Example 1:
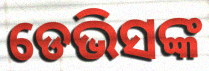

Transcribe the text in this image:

ଡେଭିସଙ୍କ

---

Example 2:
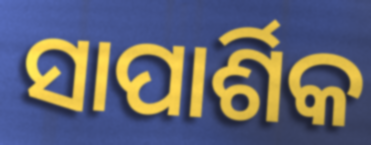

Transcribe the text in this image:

ସାପାର୍ଶିକ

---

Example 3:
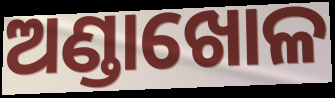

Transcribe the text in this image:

ଅଣ୍ଡାଖୋଳ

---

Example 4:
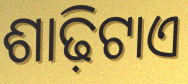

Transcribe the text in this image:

ଶାଢ଼ିଟାଏ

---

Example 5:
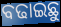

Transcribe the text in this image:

ବଢାଇଛୁ